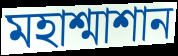
মহাশ্মাশান